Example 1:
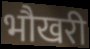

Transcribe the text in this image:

भौखरी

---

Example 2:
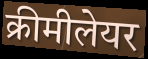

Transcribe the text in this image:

क्रीमीलेयर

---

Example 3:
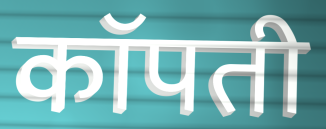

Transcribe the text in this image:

कॉपती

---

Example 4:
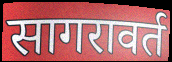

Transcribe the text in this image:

सागरावर्त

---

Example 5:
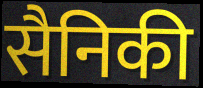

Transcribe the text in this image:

सैनिकी